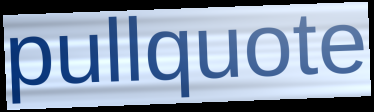
pullquote